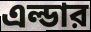
এল্ডার